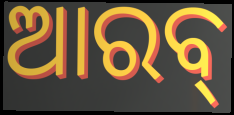
ଆରବ୍